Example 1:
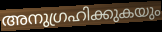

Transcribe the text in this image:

അനുഗ്രഹിക്കുകയും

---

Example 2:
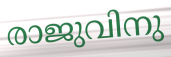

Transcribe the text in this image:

രാജുവിനു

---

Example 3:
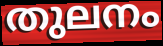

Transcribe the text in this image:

തുലനം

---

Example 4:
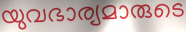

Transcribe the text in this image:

യുവഭാര്യമാരുടെ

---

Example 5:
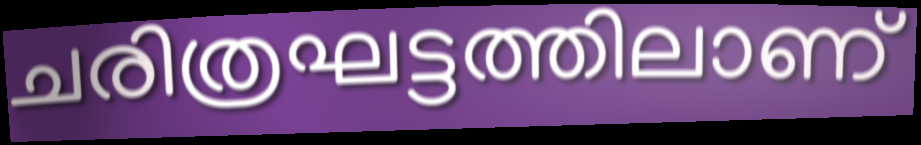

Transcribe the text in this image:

ചരിത്രഘട്ടത്തിലാണ്